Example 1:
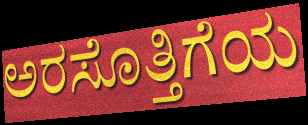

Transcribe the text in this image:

ಅರಸೊತ್ತಿಗೆಯ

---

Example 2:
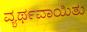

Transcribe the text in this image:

ವ್ಯರ್ಥವಾಯಿತು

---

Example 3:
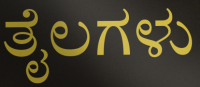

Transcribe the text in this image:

ತೈಲಗಳು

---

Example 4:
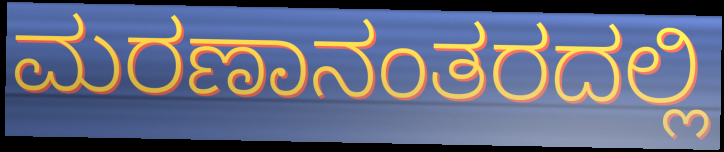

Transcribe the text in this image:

ಮರಣಾನಂತರದಲ್ಲಿ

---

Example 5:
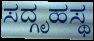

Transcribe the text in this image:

ಸದ್ಗೃಹಸ್ಥ